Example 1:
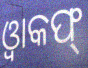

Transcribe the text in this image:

ଓ୍ଵାକଫ୍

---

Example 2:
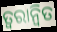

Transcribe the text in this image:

ତ୍ବରାନ୍ବିତ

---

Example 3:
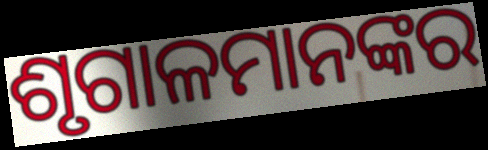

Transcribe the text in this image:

ଶୃଗାଳମାନଙ୍କର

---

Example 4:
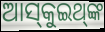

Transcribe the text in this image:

ଆସ୍‌କୁଇଥ୍‌ଙ୍କ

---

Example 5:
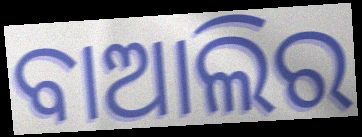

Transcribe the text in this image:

ବାଆଲିର